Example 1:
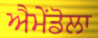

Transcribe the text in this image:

ਐਮੇਂਡੋਲਾ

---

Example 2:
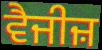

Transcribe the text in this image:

ਵੈਜੀਜ਼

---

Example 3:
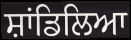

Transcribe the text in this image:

ਸ਼ਾਂਡਿਲਿਆ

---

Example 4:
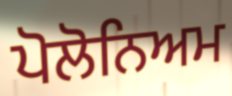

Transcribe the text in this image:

ਪੋਲੋਨਿਅਮ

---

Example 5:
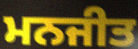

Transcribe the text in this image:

ਮਨਜੀਤ